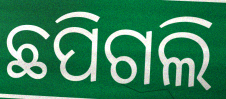
ଛପିଗଲି